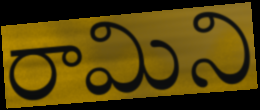
రామిని